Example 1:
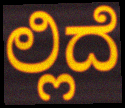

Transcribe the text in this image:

ಲ್ಲಿದೆ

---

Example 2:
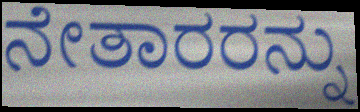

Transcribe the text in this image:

ನೇತಾರರನ್ನು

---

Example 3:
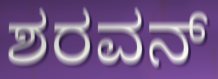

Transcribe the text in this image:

ಶರವನ್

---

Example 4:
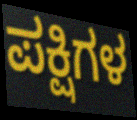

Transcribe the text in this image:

ಪಕ್ಷಿಗಳ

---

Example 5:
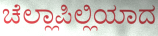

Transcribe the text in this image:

ಚೆಲ್ಲಾಪಿಲ್ಲಿಯಾದ